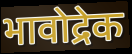
भावोद्रेक